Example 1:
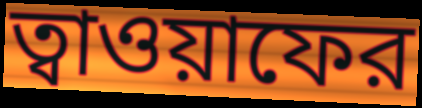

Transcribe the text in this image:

ত্বাওয়াফের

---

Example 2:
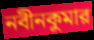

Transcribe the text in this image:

নবীনকুমার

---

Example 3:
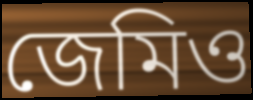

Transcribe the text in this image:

জেমিও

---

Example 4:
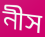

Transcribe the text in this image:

নীস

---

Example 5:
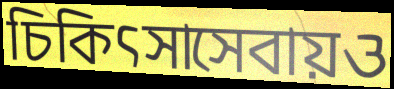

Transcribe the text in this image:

চিকিৎসাসেবায়ও